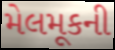
મેલમૂકની